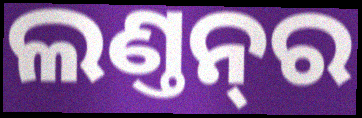
ଲଣ୍ତନ୍‌ର